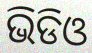
ଭିଡିଓ